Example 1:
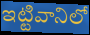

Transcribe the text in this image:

ఇట్టివానిలో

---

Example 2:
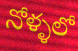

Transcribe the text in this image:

నోళ్ళలో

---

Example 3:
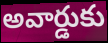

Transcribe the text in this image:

అవార్డుకు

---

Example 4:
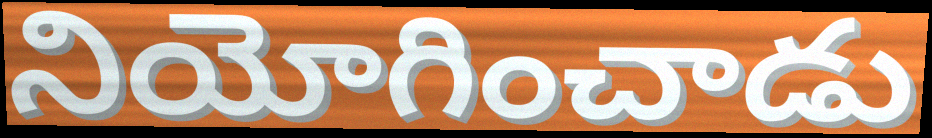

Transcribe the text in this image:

నియోగించాడు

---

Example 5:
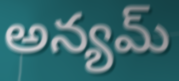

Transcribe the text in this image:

అన్యమ్